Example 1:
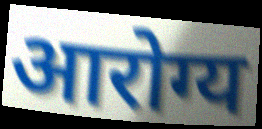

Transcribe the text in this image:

आरोग्य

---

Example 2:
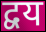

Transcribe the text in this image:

द्वय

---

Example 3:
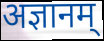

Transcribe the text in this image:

अज्ञानम्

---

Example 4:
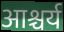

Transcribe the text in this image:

आश्चर्य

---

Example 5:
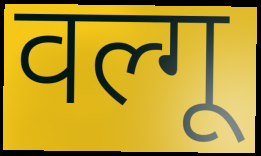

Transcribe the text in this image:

वल्गू